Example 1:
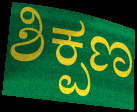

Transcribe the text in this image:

ಶಿಕ್ಪಣ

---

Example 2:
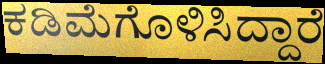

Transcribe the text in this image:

ಕಡಿಮೆಗೊಳಿಸಿದ್ದಾರೆ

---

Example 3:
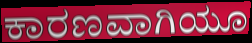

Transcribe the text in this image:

ಕಾರಣವಾಗಿಯೂ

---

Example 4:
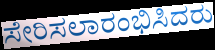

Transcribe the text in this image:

ಸೇರಿಸಲಾರಂಭಿಸಿದರು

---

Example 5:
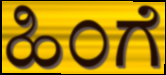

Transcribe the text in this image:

ಹಿಂಗೆ